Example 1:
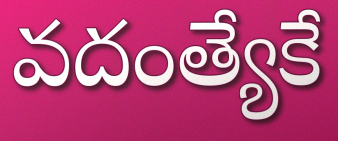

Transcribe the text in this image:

వదంత్యేకే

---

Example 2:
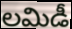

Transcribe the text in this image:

లమిడీ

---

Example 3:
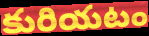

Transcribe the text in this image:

కురియటం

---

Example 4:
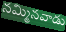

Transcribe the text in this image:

నమ్మినవాడు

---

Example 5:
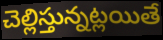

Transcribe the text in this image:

చెల్లిస్తున్నట్లయితే